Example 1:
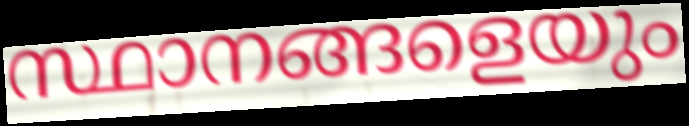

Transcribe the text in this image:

സ്ഥാനങ്ങളെയും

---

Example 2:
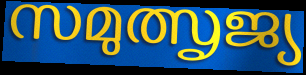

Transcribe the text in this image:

സമുത്സൃജ്യ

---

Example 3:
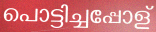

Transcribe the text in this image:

പൊട്ടിച്ചപ്പോള്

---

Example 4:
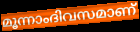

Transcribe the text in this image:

മൂന്നാംദിവസമാണ്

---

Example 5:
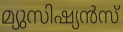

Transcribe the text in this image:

മ്യുസിഷ്യൻസ്